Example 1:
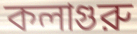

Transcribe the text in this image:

কলাগুৰু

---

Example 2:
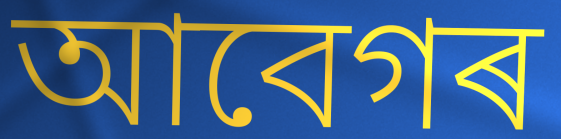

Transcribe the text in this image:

আবেগৰ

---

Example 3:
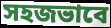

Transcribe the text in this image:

সহজভাবে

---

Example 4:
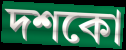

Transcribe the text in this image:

দশকো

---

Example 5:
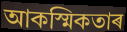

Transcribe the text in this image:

আকস্মিকতাৰ